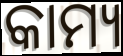
କାମ୍ୟ